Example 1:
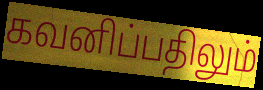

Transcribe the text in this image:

கவனிப்பதிலும்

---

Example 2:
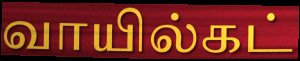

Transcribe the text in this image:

வாயில்கட்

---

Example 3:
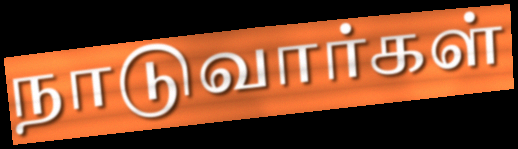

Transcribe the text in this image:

நாடுவார்கள்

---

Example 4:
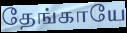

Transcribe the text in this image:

தேங்காயே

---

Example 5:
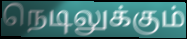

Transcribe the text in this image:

நெடிலுக்கும்